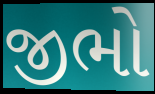
જીભો